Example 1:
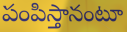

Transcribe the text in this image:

పంపిస్తానంటూ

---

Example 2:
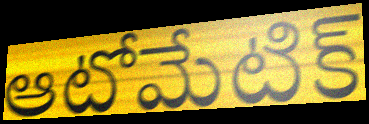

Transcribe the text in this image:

ఆటోమేటిక్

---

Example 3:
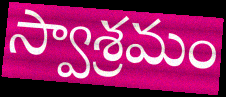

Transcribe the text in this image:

స్వాశ్రమం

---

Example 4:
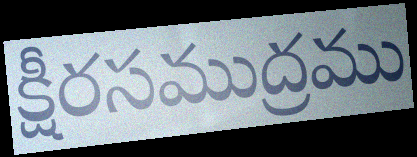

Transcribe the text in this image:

క్షీరసముద్రము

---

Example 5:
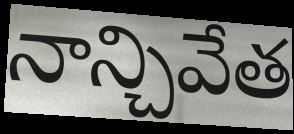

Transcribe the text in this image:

నాన్చివేత